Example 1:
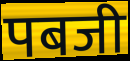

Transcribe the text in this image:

पबजी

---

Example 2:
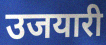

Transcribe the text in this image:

उजयारी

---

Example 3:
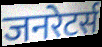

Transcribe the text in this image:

जनरेटर्स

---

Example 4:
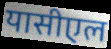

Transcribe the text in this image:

यासीएल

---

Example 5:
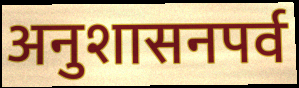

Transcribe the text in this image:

अनुशासनपर्व